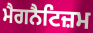
ਮੈਗਨੈਟਿਜ਼ਮ